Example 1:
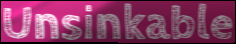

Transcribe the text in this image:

Unsinkable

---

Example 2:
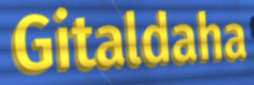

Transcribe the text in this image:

Gitaldaha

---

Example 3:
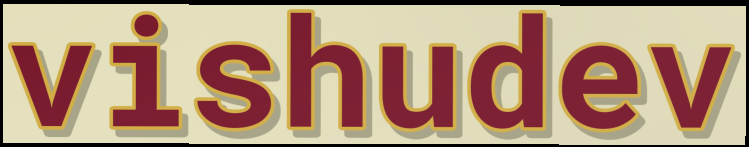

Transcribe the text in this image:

vishudev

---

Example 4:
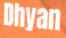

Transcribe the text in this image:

Dhyan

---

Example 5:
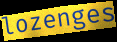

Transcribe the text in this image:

lozenges